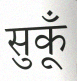
सुकूँ